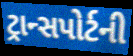
ટ્રાન્સપોર્ટની